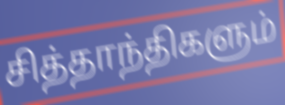
சித்தாந்திகளும்